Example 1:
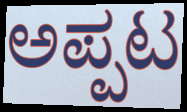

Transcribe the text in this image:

ಅಪ್ಪಟ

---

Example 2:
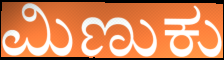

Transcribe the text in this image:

ಮಿಣುಕು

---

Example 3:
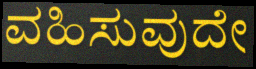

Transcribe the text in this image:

ವಹಿಸುವುದೇ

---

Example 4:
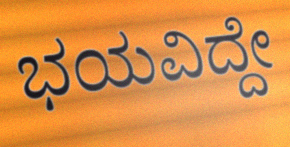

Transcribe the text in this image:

ಭಯವಿದ್ದೇ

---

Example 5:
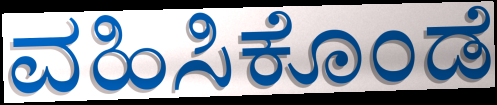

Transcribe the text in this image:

ವಹಿಸಿಕೊಂಡೆ